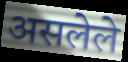
असलेले